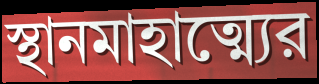
স্থানমাহাত্ম্যের